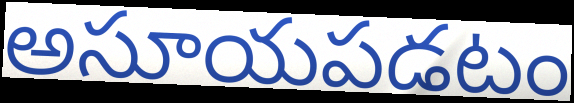
అసూయపడటం